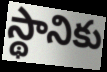
స్థానికు